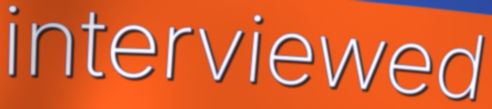
interviewed